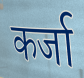
कर्जा